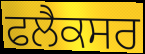
ਫਲੈਕਸਰ